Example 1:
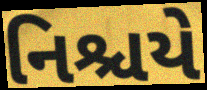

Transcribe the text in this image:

નિશ્ચયે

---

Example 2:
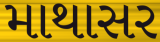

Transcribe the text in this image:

માથાસર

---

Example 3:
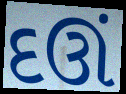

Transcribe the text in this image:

દઊં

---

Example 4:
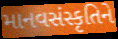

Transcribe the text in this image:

માનવસંસ્કૃતિને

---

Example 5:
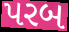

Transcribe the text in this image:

પરબ